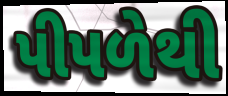
પીપળેથી